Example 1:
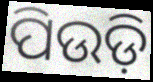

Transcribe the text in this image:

ପିଉଡ଼ି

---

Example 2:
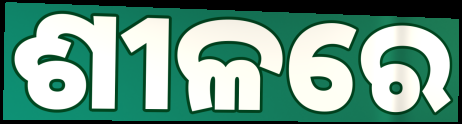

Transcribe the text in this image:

ଶୀଳରେ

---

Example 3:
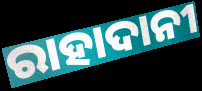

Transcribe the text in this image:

ରାହାଦାନୀ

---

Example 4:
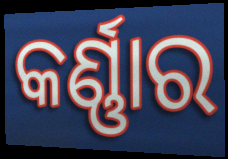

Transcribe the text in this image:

କର୍ଣ୍ଣାର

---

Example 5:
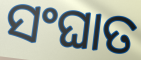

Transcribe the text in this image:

ସଂଘାତ